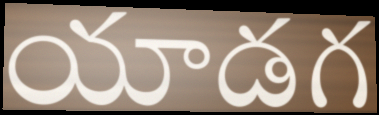
యాడగ